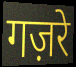
गज़रे